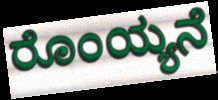
ರೊಂಯ್ಯನೆ